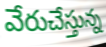
వేరుచేస్తున్న